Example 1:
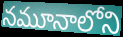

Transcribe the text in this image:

నమూనాలోని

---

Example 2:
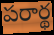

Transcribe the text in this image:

పరార్థ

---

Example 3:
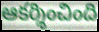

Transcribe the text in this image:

ఆకర్శించింది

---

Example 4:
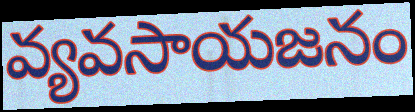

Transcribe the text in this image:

వ్యవసాయజనం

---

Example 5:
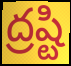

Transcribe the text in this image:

ద్రష్టి